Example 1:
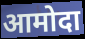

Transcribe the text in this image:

आमोदा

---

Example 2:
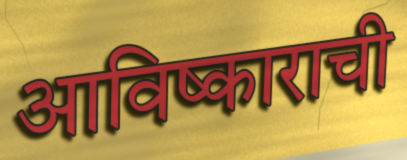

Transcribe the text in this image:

आविष्काराची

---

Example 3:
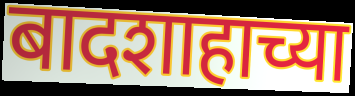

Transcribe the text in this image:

बादशाहाच्या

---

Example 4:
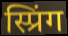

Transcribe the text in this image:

स्प्रिंग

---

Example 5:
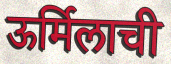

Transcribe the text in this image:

ऊर्मिलाची